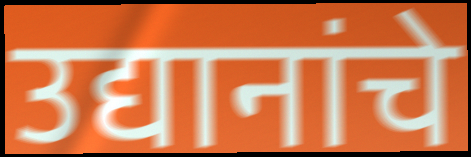
उद्यानांचे